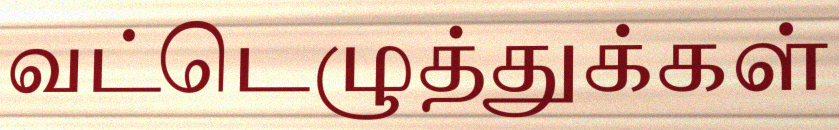
வட்டெழுத்துக்கள்